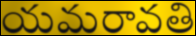
యమరావతి